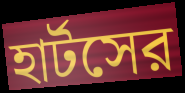
হার্টসের